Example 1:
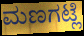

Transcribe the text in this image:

ಮಣಗಟ್ಲೆ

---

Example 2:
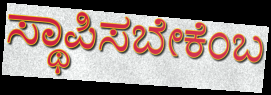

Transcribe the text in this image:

ಸ್ಥಾಪಿಸಬೇಕೆಂಬ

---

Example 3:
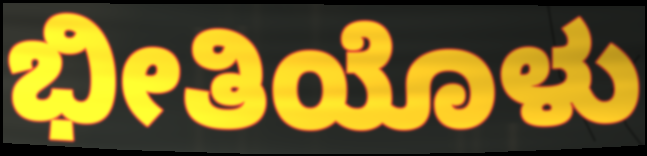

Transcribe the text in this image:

ಭೀತಿಯೊಳು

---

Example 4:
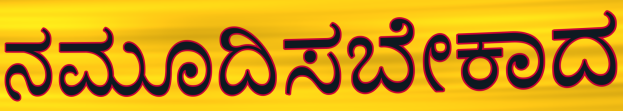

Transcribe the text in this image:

ನಮೂದಿಸಬೇಕಾದ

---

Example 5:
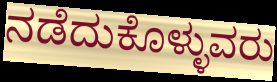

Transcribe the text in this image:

ನಡೆದುಕೊಳ್ಳುವರು